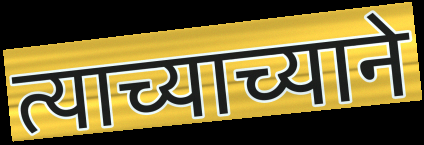
त्याच्याच्याने